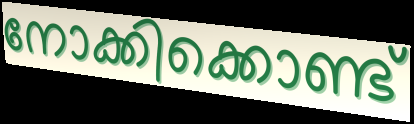
നോക്കിക്കൊണ്ട്